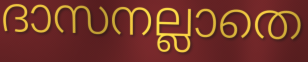
ദാസനല്ലാതെ